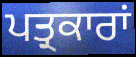
ਪਤ੍ਰਕਾਰਾਂ